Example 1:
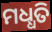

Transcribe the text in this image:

ମଧ୍ଧତି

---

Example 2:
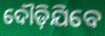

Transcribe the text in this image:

ଦୌଡ଼ିଯିବେ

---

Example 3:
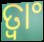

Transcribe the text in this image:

ତ୍ୱାଂ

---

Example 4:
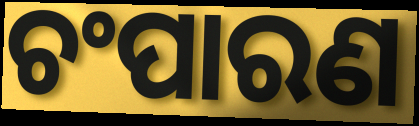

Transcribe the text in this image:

ଚଂପାରଣ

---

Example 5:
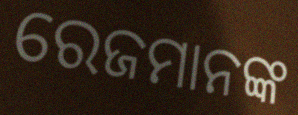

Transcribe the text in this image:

ରେଜମାନଙ୍କ